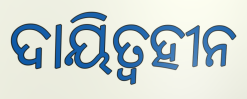
ଦାୟିତ୍ଵହୀନ